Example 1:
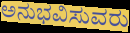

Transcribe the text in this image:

ಅನುಭವಿಸುವರು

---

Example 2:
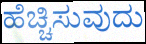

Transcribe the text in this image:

ಹೆಚ್ಚಿಸುವುದು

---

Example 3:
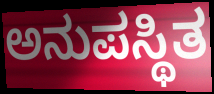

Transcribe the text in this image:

ಅನುಪಸ್ಥಿತ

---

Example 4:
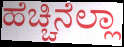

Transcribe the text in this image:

ಹೆಚ್ಚಿನೆಲ್ಲಾ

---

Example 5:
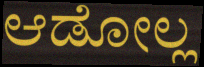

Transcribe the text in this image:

ಆಡೋಲ್ಲ